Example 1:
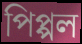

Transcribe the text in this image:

পিপ্পল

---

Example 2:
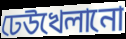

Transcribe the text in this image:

ঢেউখেলানো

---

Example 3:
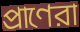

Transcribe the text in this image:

প্রাণেরা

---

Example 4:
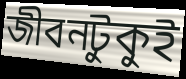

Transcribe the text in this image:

জীবনটুকুই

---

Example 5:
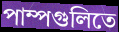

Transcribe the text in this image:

পাম্পগুলিতে